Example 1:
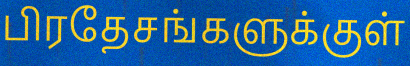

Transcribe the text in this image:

பிரதேசங்களுக்குள்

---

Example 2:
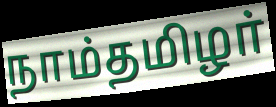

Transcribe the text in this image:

நாம்தமிழர்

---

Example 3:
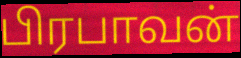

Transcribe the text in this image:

பிரபாவன்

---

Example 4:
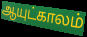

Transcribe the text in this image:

ஆயுட்காலம்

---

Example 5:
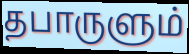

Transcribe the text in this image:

தபாருளும்